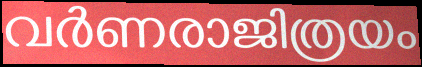
വർണരാജിത്രയം